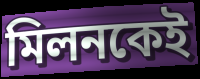
মিলনকেই